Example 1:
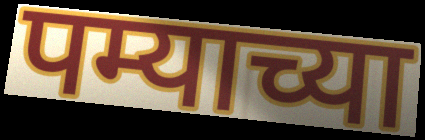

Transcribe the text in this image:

पम्याच्या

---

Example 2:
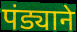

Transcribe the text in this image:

पंड्याने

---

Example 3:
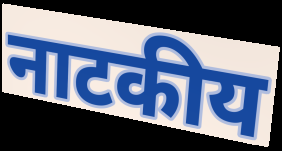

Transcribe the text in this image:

नाटकीय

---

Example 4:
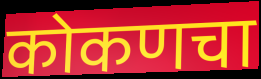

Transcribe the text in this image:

कोकणचा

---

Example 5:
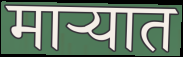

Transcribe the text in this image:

माऱ्यात